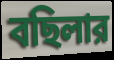
বছিলার